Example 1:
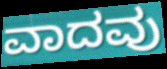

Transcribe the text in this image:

ವಾದವು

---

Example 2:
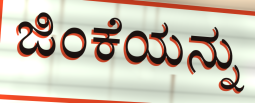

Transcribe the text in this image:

ಜಿಂಕೆಯನ್ನು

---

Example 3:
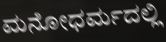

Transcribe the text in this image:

ಮನೋಧರ್ಮದಲ್ಲಿ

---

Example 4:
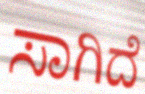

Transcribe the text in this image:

ಸಾಗಿದೆ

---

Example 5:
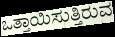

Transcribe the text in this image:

ಒತ್ತಾಯಿಸುತ್ತಿರುವ